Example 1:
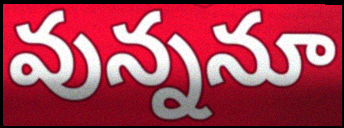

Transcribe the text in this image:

వున్ననూ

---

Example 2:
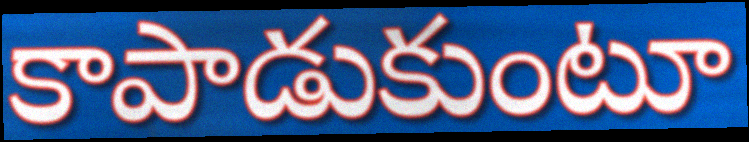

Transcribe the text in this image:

కాపాడుకుంటూ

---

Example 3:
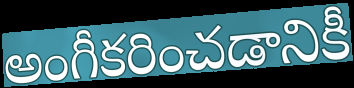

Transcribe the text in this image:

అంగీకరించడానికీ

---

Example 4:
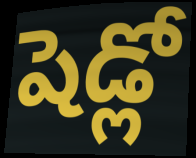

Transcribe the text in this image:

షెడ్లో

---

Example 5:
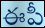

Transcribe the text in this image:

ఈపీ